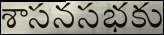
శాసనసభకు